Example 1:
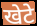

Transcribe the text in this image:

खेटे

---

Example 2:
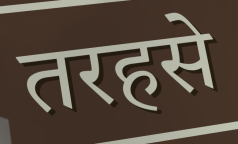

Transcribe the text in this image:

तरहसे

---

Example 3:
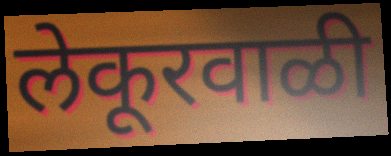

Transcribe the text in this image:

लेकूरवाळी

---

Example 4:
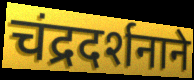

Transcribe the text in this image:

चंद्रदर्शनाने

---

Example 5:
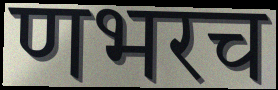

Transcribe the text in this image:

णभरच